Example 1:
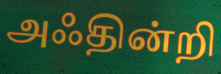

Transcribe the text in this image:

அஃதின்றி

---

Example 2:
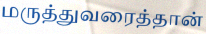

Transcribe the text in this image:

மருத்துவரைத்தான்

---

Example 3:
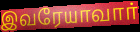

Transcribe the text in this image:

இவரேயாவார்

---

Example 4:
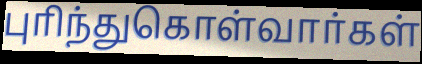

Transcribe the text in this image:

புரிந்துகொள்வார்கள்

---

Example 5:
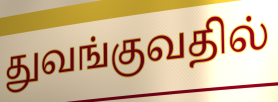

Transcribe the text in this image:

துவங்குவதில்